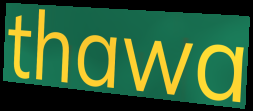
thawa